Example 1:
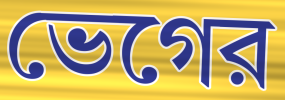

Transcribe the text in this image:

ভেগের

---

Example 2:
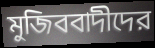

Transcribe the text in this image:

মুজিববাদীদের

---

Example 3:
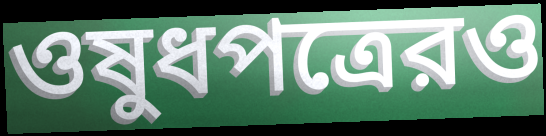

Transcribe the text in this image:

ওষুধপত্রেরও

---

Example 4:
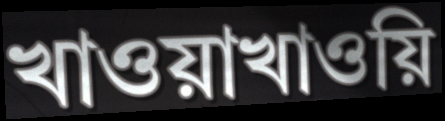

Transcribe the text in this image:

খাওয়াখাওয়ি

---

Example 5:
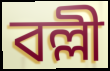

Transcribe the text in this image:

বল্লী